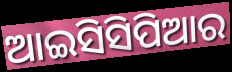
ଆଇସିସିପିଆର